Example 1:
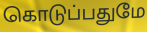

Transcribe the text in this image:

கொடுப்பதுமே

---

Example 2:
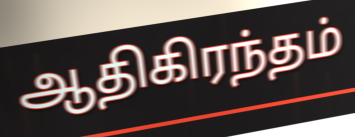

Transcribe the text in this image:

ஆதிகிரந்தம்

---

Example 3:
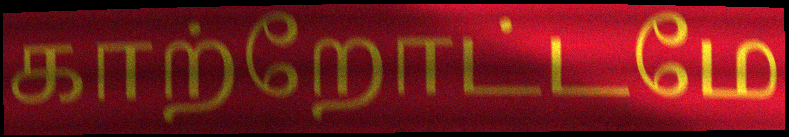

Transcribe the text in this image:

காற்றோட்டமே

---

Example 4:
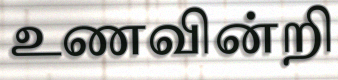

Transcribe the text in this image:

உணவின்றி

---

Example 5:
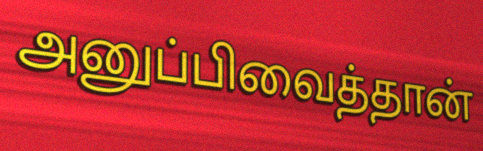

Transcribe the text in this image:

அனுப்பிவைத்தான்